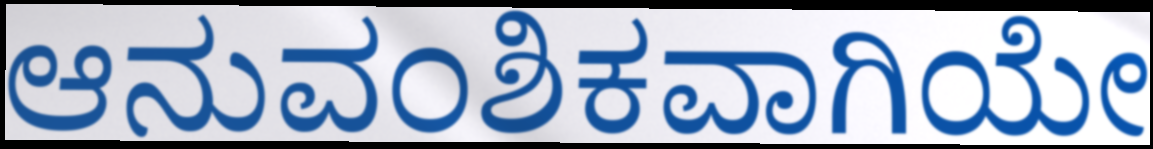
ಆನುವಂಶಿಕವಾಗಿಯೇ